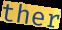
ther